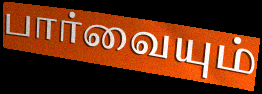
பார்வையும்